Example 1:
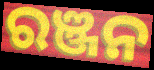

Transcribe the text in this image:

ରଞ୍ଜନ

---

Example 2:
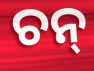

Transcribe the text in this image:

ଚନ୍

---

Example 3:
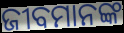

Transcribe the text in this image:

ଜୀବମାନଙ୍କ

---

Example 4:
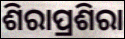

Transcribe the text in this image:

ଶିରାପ୍ରଶିରା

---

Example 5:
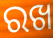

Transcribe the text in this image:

ରଖ